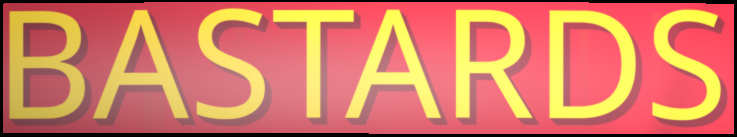
BASTARDS